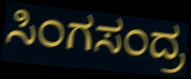
ಸಿಂಗಸಂದ್ರ